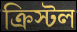
ক্রিস্টল